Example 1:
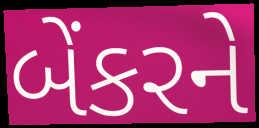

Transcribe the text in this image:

બેંકરને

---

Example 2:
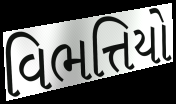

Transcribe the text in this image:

વિભત્તિયો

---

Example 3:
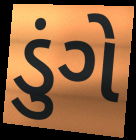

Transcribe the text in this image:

ડુંગે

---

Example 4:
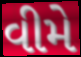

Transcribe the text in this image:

વીમે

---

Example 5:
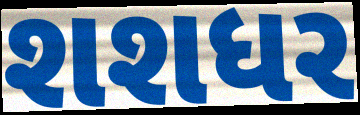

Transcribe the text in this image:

શશધર